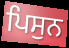
ਪਿਸੁਨ